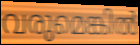
വരുമെങ്കിൽ